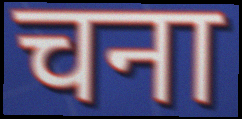
चना